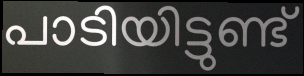
പാടിയിട്ടുണ്ട്